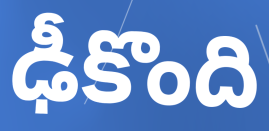
ఢీకొంది